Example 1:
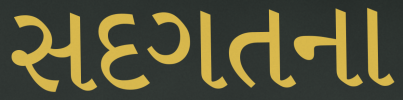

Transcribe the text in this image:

સદગતના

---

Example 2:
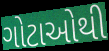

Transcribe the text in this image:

ગોટાઓથી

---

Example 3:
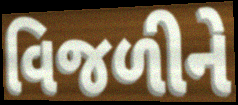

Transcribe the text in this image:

વિજળીને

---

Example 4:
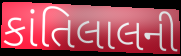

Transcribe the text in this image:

કાંતિલાલની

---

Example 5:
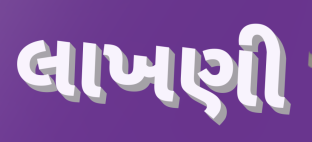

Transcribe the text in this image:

લાખણી